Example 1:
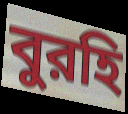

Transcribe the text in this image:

বুরহি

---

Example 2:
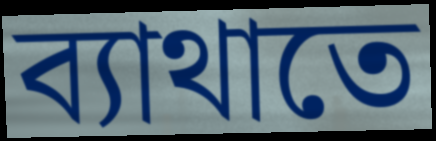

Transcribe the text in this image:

ব্যাথাতে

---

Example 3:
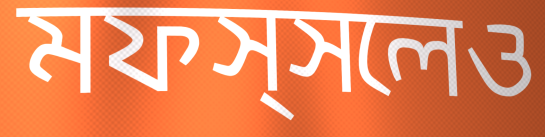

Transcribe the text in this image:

মফস্‌সলেও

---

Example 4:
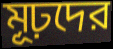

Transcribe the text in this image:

মূঢ়দের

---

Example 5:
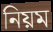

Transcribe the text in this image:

নিয়ম